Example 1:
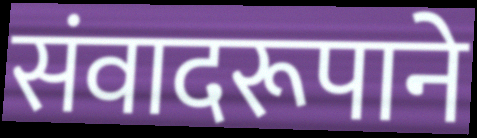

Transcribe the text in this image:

संवादरूपाने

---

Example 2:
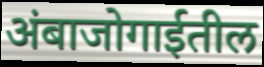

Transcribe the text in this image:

अंबाजोगाईतील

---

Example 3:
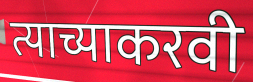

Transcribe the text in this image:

त्याच्याकरवी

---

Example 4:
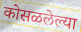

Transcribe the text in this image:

कोसळलेल्या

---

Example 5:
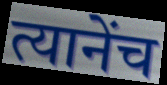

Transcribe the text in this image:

त्यानेंच